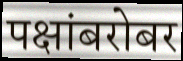
पक्षांबरोबर